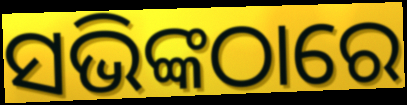
ସଭିଙ୍କଠାରେ